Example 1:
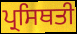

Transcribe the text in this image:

ਪ੍ਰਸਿਥਤੀ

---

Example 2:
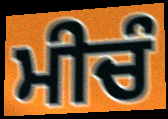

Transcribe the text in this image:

ਮੀਚੰ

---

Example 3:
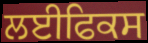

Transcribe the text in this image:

ਲਈਫਿਕਸ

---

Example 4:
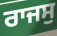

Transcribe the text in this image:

ਰਾਜਸੁ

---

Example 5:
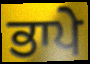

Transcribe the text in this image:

ਭਾਪੇ